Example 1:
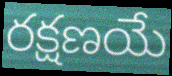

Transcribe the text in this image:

రక్షణయే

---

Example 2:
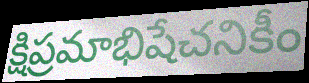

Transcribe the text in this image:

క్షిప్రమాభిషేచనికీం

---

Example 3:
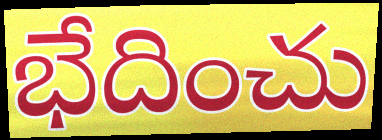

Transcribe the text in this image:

భేదించు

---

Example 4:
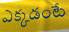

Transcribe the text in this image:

ఎక్కడంటే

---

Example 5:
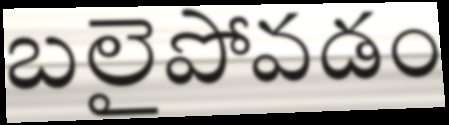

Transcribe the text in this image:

బలైపోవడం